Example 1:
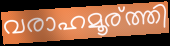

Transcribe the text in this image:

വരാഹമൂര്ത്തി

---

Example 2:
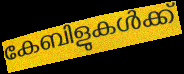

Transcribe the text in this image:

കേബിളുകൾക്ക്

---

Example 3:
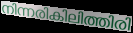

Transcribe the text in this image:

നിന്നരികിലിത്തിരി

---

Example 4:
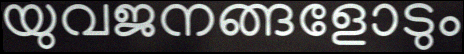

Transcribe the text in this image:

യുവജനങ്ങളോടും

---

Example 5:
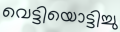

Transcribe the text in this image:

വെട്ടിയൊട്ടിച്ചു